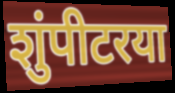
शुंपीटरया